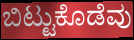
ಬಿಟ್ಟುಕೊಡೆವು